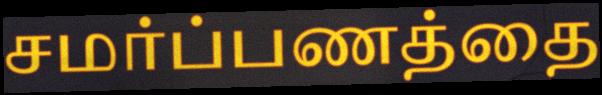
சமர்ப்பணத்தை